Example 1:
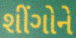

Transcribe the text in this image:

શીંગોને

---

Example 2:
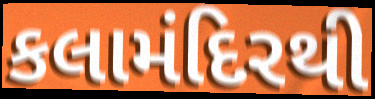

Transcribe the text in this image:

કલામંદિરથી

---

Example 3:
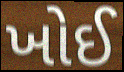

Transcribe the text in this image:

ખોઈ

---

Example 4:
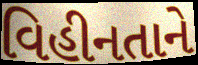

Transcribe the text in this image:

વિહીનતાને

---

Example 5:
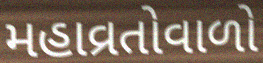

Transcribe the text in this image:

મહાવ્રતોવાળો